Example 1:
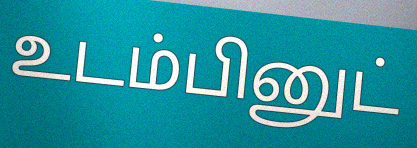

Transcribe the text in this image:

உடம்பினுட்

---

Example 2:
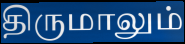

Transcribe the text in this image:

திருமாலும்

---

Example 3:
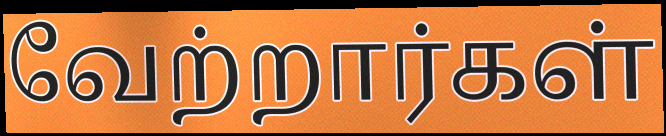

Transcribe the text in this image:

வேற்றார்கள்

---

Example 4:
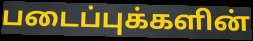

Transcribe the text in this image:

படைப்புக்களின்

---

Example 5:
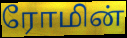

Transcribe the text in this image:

ரோமின்